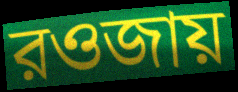
রওজায়